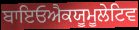
ਬਾਇਓਐਕਯੂਮੂਲੇਟਿਵ